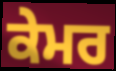
ਕੇਮਰ